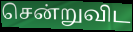
சென்றுவிட